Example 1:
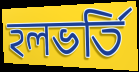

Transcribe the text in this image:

হলভর্তি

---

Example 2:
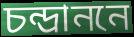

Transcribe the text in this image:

চন্দ্রাননে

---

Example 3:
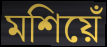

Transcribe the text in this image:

মশিয়েঁ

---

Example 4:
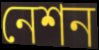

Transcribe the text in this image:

নেশন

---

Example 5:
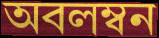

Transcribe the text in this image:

অবলম্বন